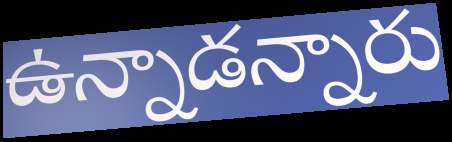
ఉన్నాడన్నారు